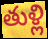
తుళ్లి